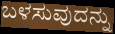
ಬಳಸುವುದನ್ನು